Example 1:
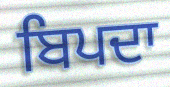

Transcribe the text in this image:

ਬਿਪਦਾ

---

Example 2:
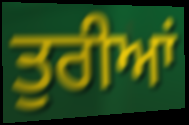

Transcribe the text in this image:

ਤੁਰੀਆਂ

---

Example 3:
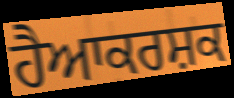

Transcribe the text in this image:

ਹੈਆਕਰਸ਼ਕ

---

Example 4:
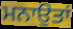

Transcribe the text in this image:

ਮਨਾਉਤਾਂ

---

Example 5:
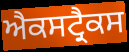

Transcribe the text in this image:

ਐਕਸਟ੍ਰੈਕਸ